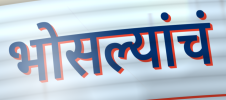
भोसल्यांचं